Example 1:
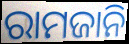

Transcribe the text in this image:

ରାମଜାନି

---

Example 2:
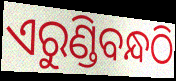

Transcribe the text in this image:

ଏରୁଣ୍ଡିବନ୍ଧଠି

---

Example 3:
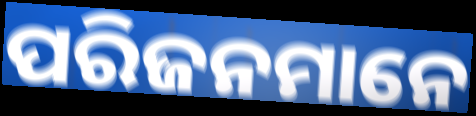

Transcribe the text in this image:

ପରିଜନମାନେ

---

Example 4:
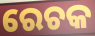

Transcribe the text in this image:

ରେଚକ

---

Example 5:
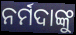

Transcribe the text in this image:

ନର୍ମଦାଙ୍କୁ